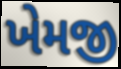
ખેમજી